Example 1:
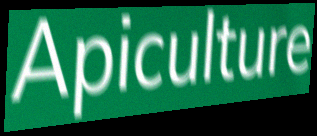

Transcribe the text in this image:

Apiculture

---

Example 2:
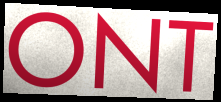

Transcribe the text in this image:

ONT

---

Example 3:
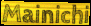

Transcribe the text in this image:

Mainichi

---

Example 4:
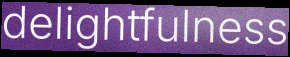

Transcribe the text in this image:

delightfulness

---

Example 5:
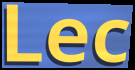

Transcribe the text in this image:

Lec